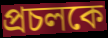
প্রচলকে